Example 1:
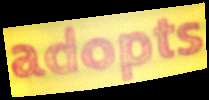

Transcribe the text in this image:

adopts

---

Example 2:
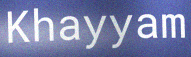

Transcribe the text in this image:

Khayyam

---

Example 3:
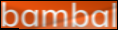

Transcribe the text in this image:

bambal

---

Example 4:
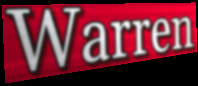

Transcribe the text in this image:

Warren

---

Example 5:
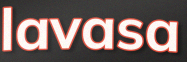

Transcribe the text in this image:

lavasa